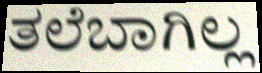
ತಲೆಬಾಗಿಲ್ಲ